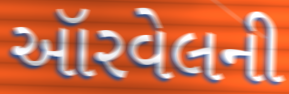
ઑરવેલની